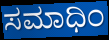
ಸಮಾಧಿಂ